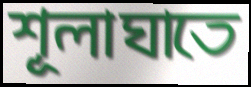
শূলাঘাতে